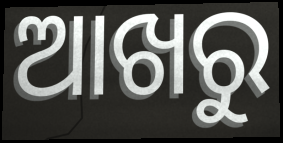
ଆଖରୁ